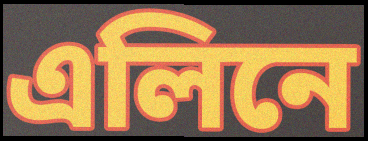
এলিনে